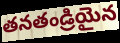
తనతండ్రియైన